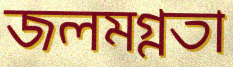
জলমগ্নতা